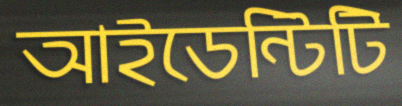
আইডেন্টিটি